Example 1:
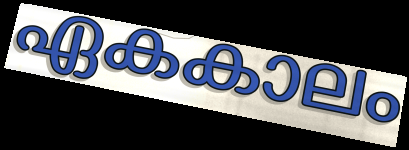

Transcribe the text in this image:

ഏകകാലം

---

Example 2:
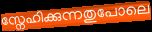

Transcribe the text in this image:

സ്നേഹിക്കുന്നതുപോലെ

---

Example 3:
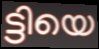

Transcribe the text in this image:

ട്ടിയെ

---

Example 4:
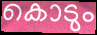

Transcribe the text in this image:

കൊടും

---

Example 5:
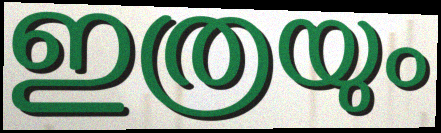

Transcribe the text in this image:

ഇത്രയും